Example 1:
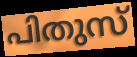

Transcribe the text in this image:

പിതുസ്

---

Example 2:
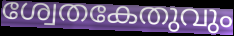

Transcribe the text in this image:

ശ്വേതകേതുവും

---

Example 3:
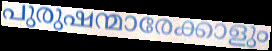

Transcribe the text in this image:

പുരുഷന്മാരേക്കാളും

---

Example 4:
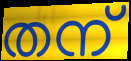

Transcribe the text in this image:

തന്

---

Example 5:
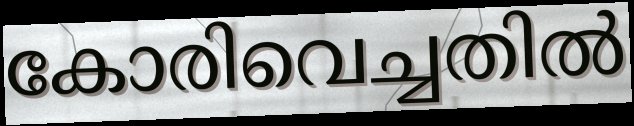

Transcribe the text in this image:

കോരിവെച്ചതിൽ